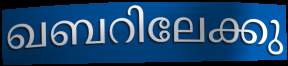
ഖബറിലേക്കു